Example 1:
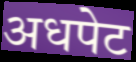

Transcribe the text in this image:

अधपेट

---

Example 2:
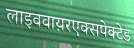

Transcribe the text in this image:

लाइववाय़रएक्सपेक्टेड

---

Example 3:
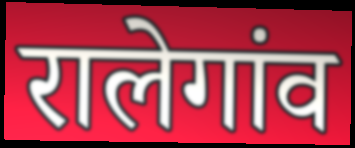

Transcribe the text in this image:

रालेगांव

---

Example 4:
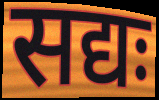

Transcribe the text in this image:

सद्यः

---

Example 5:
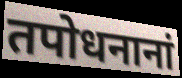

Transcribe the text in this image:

तपोधनानां